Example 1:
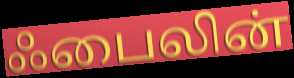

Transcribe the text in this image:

ஃபைலின்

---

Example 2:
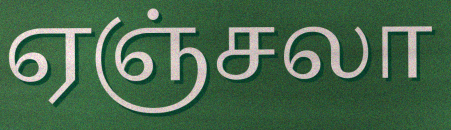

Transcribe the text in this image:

ஏஞ்சலா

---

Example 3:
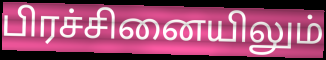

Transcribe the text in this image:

பிரச்சினையிலும்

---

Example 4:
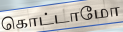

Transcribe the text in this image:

கொட்டாமோ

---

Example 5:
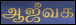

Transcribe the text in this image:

ஆஜீவக